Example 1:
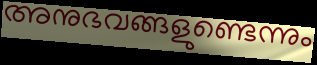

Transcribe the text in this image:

അനുഭവങ്ങളുണ്ടെന്നും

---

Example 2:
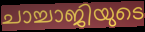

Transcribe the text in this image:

ചാച്ചാജിയുടെ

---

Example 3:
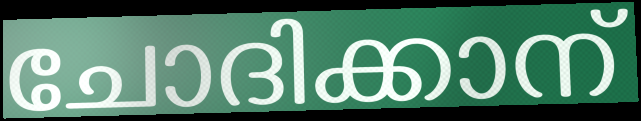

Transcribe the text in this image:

ചോദിക്കാന്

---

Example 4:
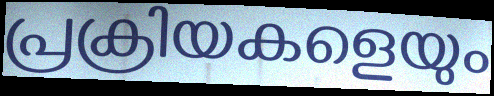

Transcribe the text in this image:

പ്രക്രിയകളെയും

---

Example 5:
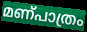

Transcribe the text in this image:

മണ്പാത്രം